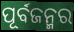
ପୂର୍ବଜନ୍ମର